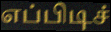
எப்பிடிச்